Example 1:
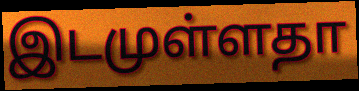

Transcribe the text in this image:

இடமுள்ளதா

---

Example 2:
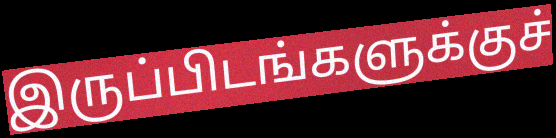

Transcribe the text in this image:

இருப்பிடங்களுக்குச்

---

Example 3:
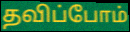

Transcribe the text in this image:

தவிப்போம்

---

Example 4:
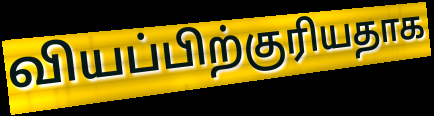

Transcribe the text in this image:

வியப்பிற்குரியதாக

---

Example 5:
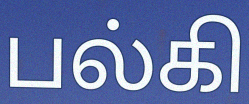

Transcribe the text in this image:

பல்கி